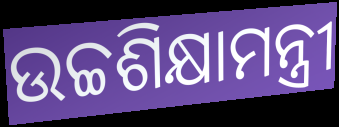
ଉଚ୍ଚଶିକ୍ଷାମନ୍ତ୍ରୀ